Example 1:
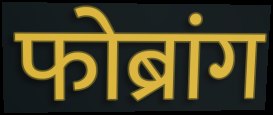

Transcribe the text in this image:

फोब्रांग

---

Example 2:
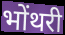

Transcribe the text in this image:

भोंथरी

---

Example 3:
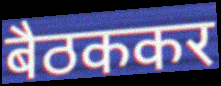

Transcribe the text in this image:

बैठककर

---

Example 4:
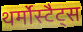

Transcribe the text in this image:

थर्मोस्टैट्स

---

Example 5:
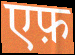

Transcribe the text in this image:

एफ़